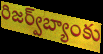
రిజర్వ్‌బ్యాంకు